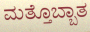
ಮತ್ತೊಬ್ಬಾತ